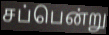
சப்பென்று